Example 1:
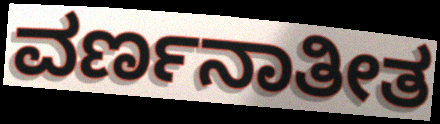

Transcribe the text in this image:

ವರ್ಣನಾತೀತ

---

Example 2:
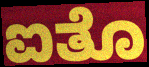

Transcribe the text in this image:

ಐತೊ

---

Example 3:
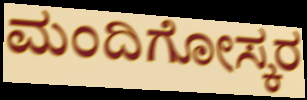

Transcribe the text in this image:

ಮಂದಿಗೋಸ್ಕರ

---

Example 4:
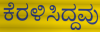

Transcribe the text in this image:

ಕೆರಳಿಸಿದ್ದವು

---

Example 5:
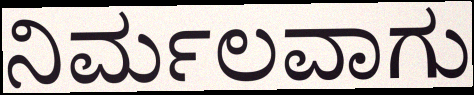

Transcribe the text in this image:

ನಿರ್ಮಲವಾಗು